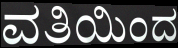
ವತಿಯಿಂದ